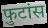
फुटांस